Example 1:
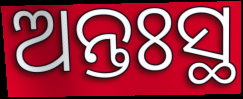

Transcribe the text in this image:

ଅନ୍ତଃସ୍ଥ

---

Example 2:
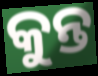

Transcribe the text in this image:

କୁନ୍ତ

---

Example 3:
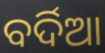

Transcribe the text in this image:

ବର୍ଦିଆ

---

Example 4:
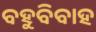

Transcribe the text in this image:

ବହୁବିବାହ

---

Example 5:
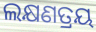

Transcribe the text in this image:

ଲକ୍ଷଣତ୍ରୟ